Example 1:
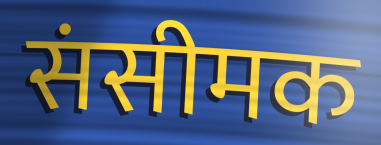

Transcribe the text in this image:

संसीमक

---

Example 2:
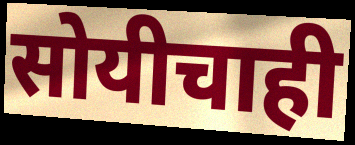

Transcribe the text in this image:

सोयीचाही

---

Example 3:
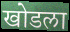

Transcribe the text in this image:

खोडला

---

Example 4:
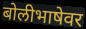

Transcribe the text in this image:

बोलीभाषेवर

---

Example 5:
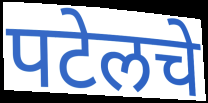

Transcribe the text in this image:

पटेलचे